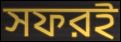
সফরই